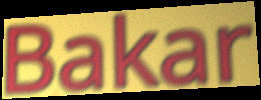
Bakar